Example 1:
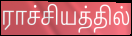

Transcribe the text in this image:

ராச்சியத்தில்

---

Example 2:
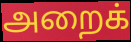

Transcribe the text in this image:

அறைக்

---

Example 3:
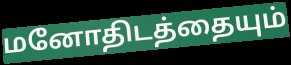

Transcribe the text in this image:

மனோதிடத்தையும்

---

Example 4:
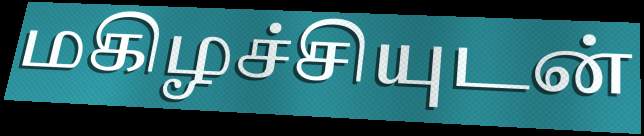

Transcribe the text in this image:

மகிழச்சியுடன்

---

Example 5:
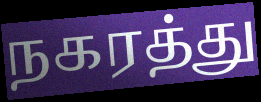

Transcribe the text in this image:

நகரத்து